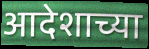
आदेशाच्या